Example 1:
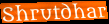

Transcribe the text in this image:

Shrutdhar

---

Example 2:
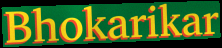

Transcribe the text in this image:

Bhokarikar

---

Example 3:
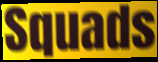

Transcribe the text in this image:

Squads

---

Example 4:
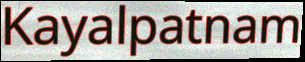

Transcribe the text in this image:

Kayalpatnam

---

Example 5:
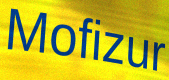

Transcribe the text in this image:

Mofizur